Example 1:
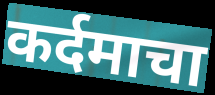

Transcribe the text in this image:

कर्दमाचा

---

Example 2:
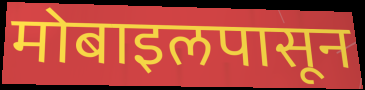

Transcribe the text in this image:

मोबाइलपासून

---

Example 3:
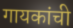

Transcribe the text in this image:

गायकांची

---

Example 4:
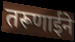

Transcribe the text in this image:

तरूणाईने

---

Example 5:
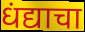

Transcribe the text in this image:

धंद्याचा